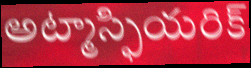
అట్మాస్ఫియరిక్